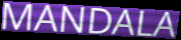
MANDALA